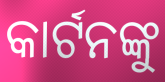
କାର୍ଟନଙ୍କୁ